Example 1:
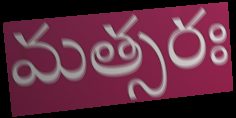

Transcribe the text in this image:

మత్సరః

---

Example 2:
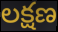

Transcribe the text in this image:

లక్షణ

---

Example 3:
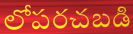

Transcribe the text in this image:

లోపరచబడి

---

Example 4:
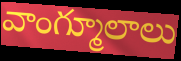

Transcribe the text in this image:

వాంగ్మూలాలు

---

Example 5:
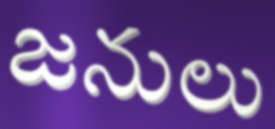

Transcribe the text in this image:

జనులు